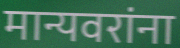
मान्यवरांना